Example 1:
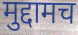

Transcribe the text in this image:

मुद्दामच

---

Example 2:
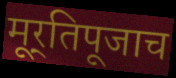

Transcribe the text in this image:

मूर्तिपूजाच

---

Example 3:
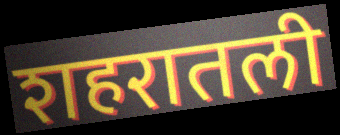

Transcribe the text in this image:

शहरातली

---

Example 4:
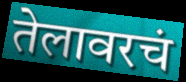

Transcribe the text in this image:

तेलावरचं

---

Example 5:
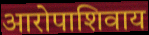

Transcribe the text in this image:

आरोपाशिवाय